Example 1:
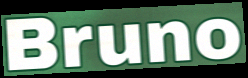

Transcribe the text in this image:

Bruno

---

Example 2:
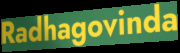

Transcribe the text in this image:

Radhagovinda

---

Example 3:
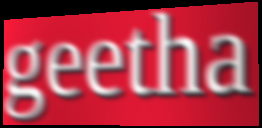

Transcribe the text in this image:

geetha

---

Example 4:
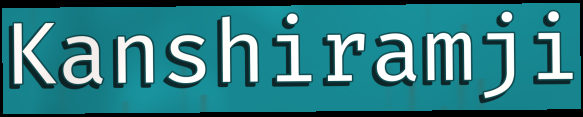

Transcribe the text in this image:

Kanshiramji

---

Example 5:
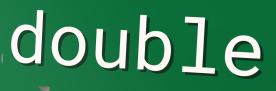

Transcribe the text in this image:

double